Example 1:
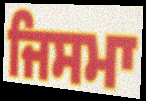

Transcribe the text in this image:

ਜਿਸਮਾ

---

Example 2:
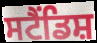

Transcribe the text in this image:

ਸਟੈਂਡਿਸ਼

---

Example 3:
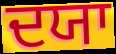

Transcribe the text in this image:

ਦਯਾ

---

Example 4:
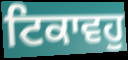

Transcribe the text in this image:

ਟਿਕਾਵਹੁ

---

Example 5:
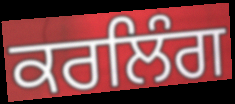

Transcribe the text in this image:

ਕਰਲਿੰਗ